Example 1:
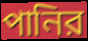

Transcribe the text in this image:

পানির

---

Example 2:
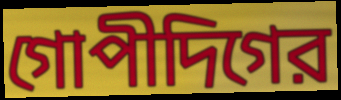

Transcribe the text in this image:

গোপীদিগের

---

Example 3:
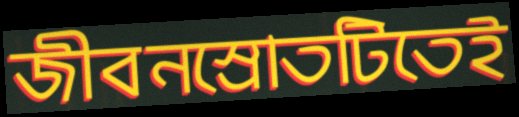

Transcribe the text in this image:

জীবনস্রোতটিতেই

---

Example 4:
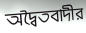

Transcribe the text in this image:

অদ্বৈতবাদীর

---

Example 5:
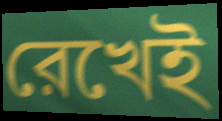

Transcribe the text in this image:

রেখেই